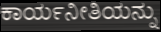
ಕಾರ್ಯನೀತಿಯನ್ನು